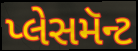
પ્લેસમૅન્ટ